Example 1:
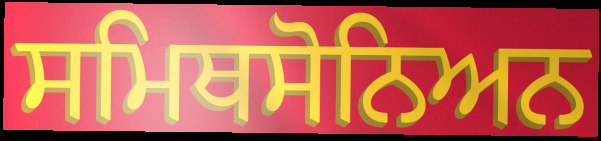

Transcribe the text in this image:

ਸਮਿਥਸੋਨਿਅਨ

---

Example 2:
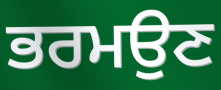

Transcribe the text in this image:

ਭਰਮਉਣ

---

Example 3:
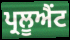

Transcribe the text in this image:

ਪ੍ਰਲੂਐਂਟ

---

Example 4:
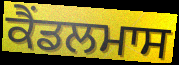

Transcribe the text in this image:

ਕੈਂਡਲਮਾਸ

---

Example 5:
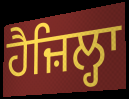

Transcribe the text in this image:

ਹੈਜ਼ਿਲ੍ਹਾ